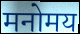
मनोमय